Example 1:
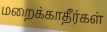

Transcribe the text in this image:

மறைக்காதீர்கள்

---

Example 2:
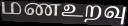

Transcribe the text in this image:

மணஉறவு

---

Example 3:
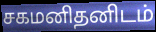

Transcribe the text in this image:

சகமனிதனிடம்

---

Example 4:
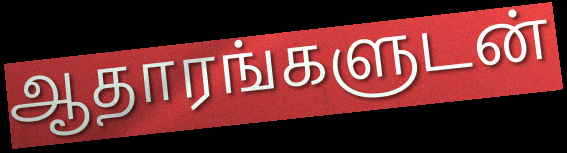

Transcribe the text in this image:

ஆதாரங்களுடன்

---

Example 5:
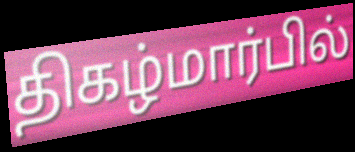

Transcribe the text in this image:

திகழ்மார்பில்